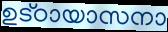
ഉട്ഠായാസനാ